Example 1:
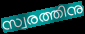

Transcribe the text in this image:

സ്വരത്തിനു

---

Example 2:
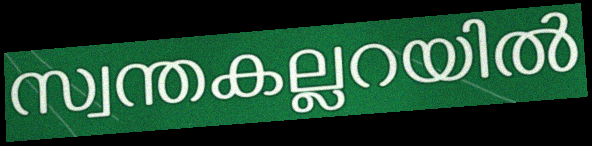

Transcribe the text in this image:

സ്വന്തകല്ലറയിൽ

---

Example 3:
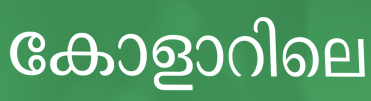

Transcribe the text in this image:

കോളാറിലെ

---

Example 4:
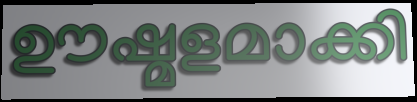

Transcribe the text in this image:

ഊഷ്മളമാക്കി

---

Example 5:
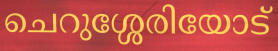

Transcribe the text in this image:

ചെറുശ്ശേരിയോട്